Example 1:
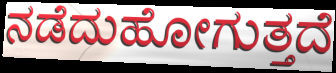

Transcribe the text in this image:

ನಡೆದುಹೋಗುತ್ತದೆ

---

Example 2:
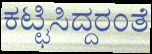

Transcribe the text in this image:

ಕಟ್ಟಿಸಿದ್ದರಂತೆ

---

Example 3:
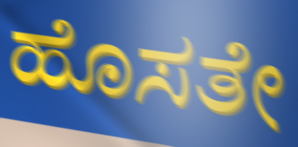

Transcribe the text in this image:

ಹೊಸತೇ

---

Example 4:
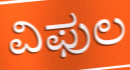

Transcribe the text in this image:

ವಿಫುಲ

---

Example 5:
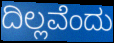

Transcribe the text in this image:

ದಿಲ್ಲವೆಂದು